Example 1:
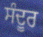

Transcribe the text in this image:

ਸੰਦੂਰ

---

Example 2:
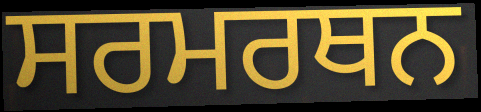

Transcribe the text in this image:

ਸਰਮਰਥਨ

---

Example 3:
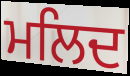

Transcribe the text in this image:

ਮਲਿਦ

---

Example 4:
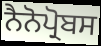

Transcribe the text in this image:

ਨੈਨੋਪ੍ਰੋਬਸ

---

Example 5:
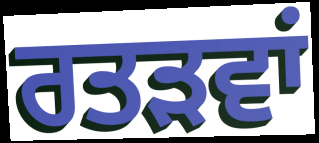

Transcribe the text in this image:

ਰਤੜਵਾਂ